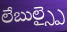
లేబుల్స్పై